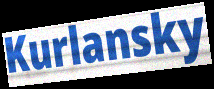
Kurlansky